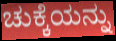
ಚುಕ್ಕೆಯನ್ನು